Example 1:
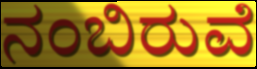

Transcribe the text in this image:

ನಂಬಿರುವೆ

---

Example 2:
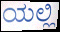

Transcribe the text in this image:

ಯಲ್ಲಿ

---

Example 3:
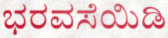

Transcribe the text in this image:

ಭರವಸೆಯಿಡಿ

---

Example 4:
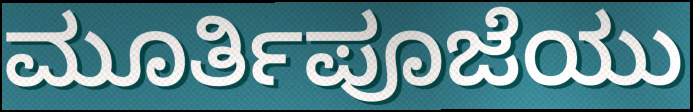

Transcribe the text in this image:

ಮೂರ್ತಿಪೂಜೆಯು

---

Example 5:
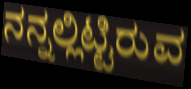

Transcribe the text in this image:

ನನ್ನಲ್ಲಿಟ್ಟಿರುವ